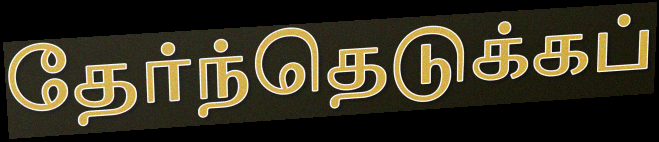
தேர்ந்தெடுக்கப்